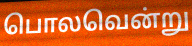
பொலவென்று